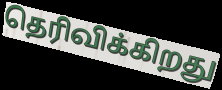
தெரிவிக்கிறது